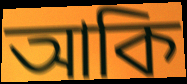
আকি